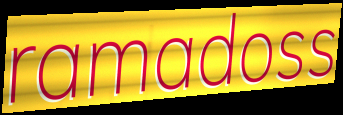
ramadoss